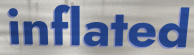
inflated